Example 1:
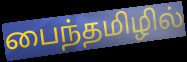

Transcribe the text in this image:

பைந்தமிழில்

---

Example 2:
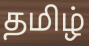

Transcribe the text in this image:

தமிழ்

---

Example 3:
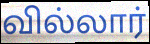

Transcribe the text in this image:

வில்லார்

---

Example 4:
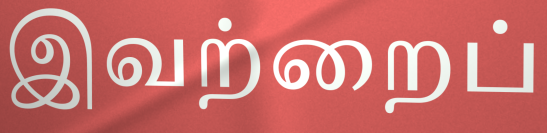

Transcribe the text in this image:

இவற்றைப்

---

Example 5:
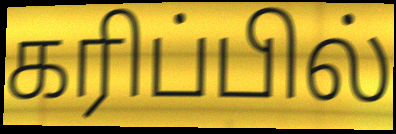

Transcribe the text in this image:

கரிப்பில்